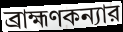
ব্রাহ্মণকন্যার